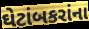
ઘેટાંબકરાંના